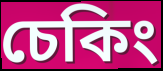
চেকিং